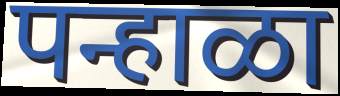
पन्हाळा